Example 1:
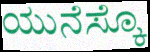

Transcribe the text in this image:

ಯುನೆಸ್ಕೊ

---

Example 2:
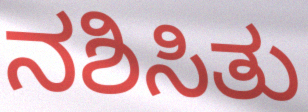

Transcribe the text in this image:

ನಶಿಸಿತು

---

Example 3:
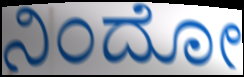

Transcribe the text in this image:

ನಿಂದೋ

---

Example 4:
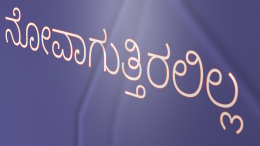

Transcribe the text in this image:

ನೋವಾಗುತ್ತಿರಲಿಲ್ಲ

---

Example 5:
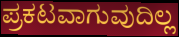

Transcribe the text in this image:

ಪ್ರಕಟವಾಗುವುದಿಲ್ಲ